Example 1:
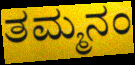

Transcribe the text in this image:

ತಮ್ಮನಂ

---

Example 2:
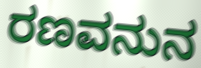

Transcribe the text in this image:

ರಣವನುನ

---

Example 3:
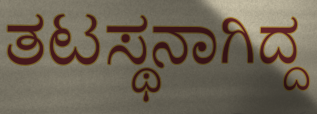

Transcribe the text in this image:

ತಟಸ್ಥನಾಗಿದ್ದ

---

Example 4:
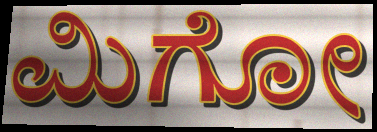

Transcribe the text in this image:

ಮಿಗೋ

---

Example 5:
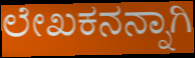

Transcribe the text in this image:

ಲೇಖಕನನ್ನಾಗಿ